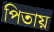
পিতায়